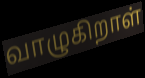
வாழுகிறாள்